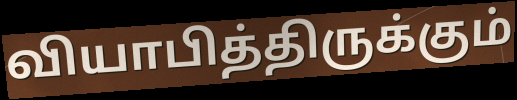
வியாபித்திருக்கும்